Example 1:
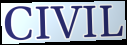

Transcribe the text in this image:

CIVIL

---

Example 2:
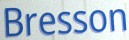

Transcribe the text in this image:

Bresson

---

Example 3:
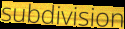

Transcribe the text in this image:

subdivision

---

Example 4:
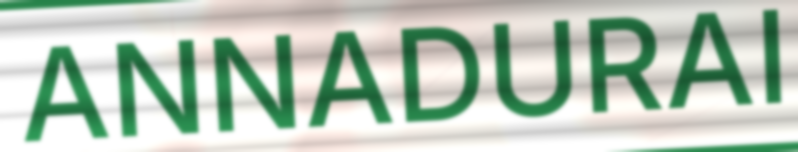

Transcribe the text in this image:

ANNADURAI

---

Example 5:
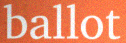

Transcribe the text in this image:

ballot